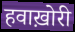
हवाख़ोरी